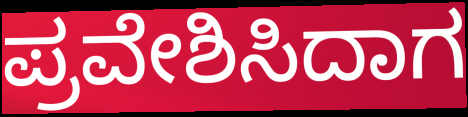
ಪ್ರವೇಶಿಸಿದಾಗ